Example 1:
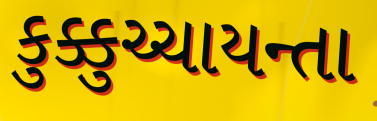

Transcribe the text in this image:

કુક્કુચ્ચાયન્તા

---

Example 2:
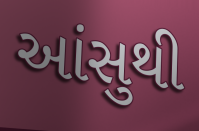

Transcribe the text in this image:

આંસુથી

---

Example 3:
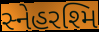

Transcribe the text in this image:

સ્નેહરશ્મિ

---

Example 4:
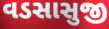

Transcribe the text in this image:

વડસાસુજી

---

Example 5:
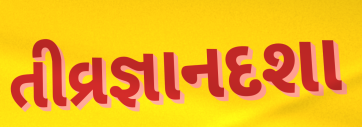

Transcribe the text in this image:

તીવ્રજ્ઞાનદશા